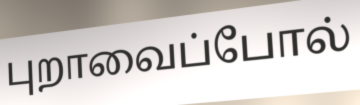
புறாவைப்போல்